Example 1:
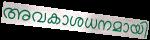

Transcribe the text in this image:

അവകാശധനമായി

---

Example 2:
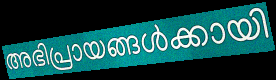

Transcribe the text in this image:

അഭിപ്രായങ്ങൾക്കായി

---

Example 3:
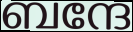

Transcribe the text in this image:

ബന്ദേ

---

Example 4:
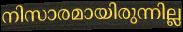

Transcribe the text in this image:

നിസാരമായിരുന്നില്ല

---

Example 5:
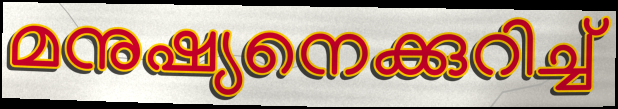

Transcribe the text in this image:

മനുഷ്യനെക്കുറിച്ച്